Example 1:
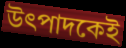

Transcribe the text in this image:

উৎপাদকেই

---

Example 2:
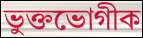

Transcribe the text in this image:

ভুক্তভোগীক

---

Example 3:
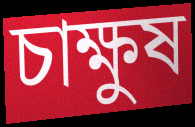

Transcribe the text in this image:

চাক্ষুষ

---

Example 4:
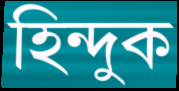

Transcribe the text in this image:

হিন্দুক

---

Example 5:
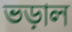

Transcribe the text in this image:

ভড়াল